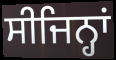
ਸੀਜਿਨ੍ਹਾਂ